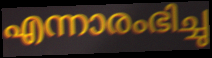
എന്നാരംഭിച്ചു